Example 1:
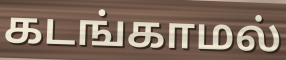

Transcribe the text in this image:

கடங்காமல்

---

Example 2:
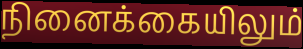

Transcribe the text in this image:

நினைக்கையிலும்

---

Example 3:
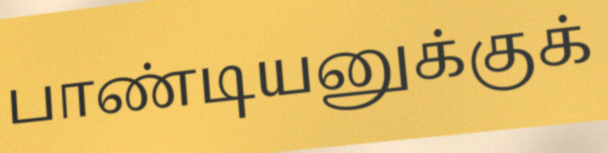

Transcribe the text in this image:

பாண்டியனுக்குக்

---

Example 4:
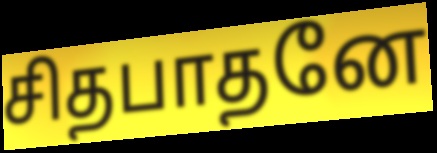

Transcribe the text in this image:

சிதபாதனே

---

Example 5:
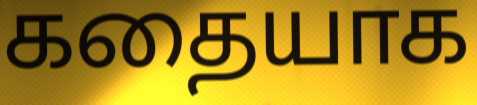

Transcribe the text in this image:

கதையாக